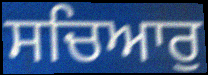
ਸਚਿਆਰੁ